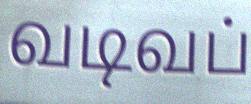
வடிவப்